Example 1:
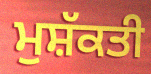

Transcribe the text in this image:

ਮੁਸ਼ੱਕਤੀ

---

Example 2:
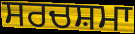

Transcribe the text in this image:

ਸਰਚਸ਼ਮਾ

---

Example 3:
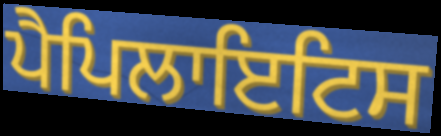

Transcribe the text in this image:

ਪੈਪਿਲਾਇਟਿਸ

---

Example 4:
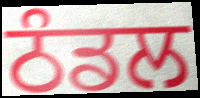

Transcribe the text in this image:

ਠੰਡਲ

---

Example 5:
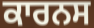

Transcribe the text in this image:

ਕਾਰਨਸ